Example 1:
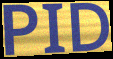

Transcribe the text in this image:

PID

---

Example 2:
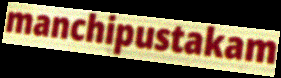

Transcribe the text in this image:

manchipustakam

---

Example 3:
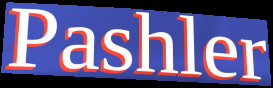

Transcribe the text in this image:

Pashler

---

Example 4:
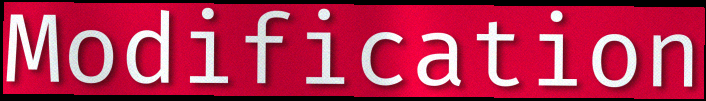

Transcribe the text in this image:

Modification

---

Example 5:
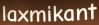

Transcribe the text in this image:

laxmikant